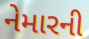
નેમારની